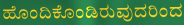
ಹೊಂದಿಕೊಂಡಿರುವುದರಿಂದ